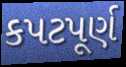
કપટપૂર્ણ